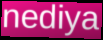
nediya